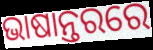
ଭାଷାନ୍ତରରେ